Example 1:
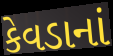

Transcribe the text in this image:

કેવડાનાં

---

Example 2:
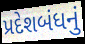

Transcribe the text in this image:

પ્રદેશબંધનું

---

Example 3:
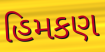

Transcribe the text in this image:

હિમકણ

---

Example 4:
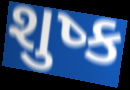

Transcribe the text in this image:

શુષ્ક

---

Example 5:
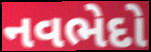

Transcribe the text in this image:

નવભેદો